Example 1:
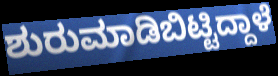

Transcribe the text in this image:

ಶುರುಮಾಡಿಬಿಟ್ಟಿದ್ದಾಳೆ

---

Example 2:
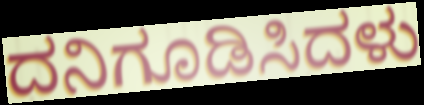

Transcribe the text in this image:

ದನಿಗೂಡಿಸಿದಳು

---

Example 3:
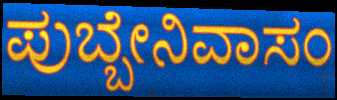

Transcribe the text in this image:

ಪುಬ್ಬೇನಿವಾಸಂ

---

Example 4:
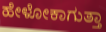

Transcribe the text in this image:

ಹೇಳೋಕಾಗುತ್ತಾ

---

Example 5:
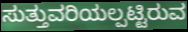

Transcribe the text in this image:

ಸುತ್ತುವರಿಯಲ್ಪಟ್ಟಿರುವ